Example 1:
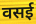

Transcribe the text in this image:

वसई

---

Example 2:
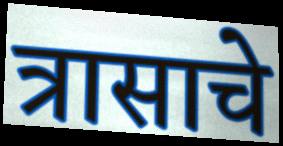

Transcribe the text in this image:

त्रासाचे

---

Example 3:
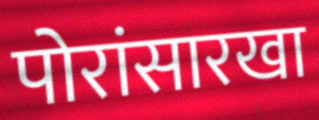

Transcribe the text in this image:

पोरांसारखा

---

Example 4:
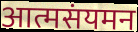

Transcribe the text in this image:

आत्मसंयमन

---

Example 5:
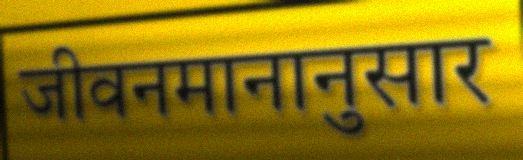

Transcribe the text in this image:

जीवनमानानुसार